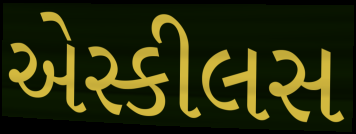
એસ્કીલસ